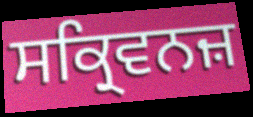
ਸਕ੍ਰਿਵਨਜ਼